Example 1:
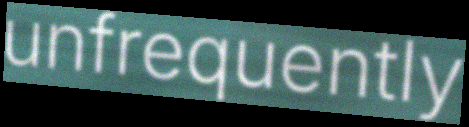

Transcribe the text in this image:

unfrequently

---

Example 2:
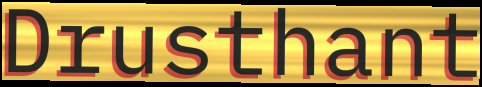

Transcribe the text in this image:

Drusthant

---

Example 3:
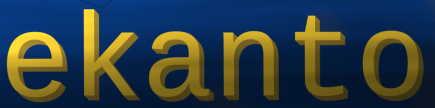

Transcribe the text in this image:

ekanto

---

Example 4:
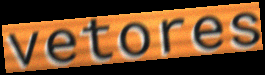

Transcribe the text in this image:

vetores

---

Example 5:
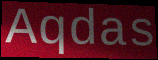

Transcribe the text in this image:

Aqdas